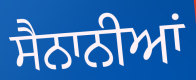
ਸੈਨਾਨੀਆਂ